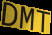
DMT